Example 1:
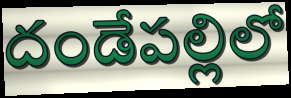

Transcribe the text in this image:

దండేపల్లిలో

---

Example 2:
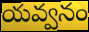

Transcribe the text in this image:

యవ్వనం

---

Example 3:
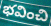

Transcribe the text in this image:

భవించి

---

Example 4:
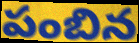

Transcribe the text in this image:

పంబిన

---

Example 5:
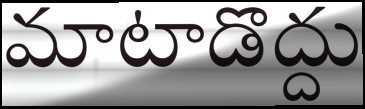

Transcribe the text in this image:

మాటాడొద్దు